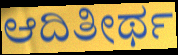
ಆದಿತೀರ್ಥ